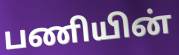
பணியின்